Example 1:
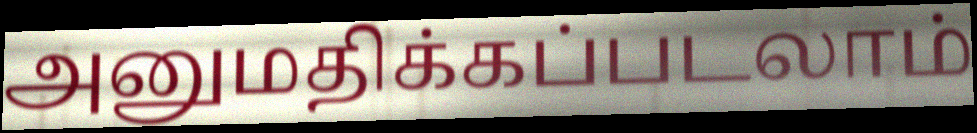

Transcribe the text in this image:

அனுமதிக்கப்படலாம்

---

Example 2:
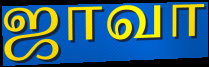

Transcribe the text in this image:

ஜாவா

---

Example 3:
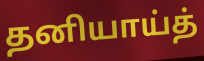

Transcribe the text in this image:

தனியாய்த்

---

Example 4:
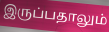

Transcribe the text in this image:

இருப்பதாலும்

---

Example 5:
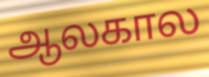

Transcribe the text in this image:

ஆலகால